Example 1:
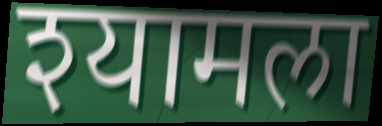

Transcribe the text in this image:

श्यामला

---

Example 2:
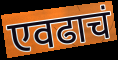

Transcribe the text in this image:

एवढाचं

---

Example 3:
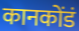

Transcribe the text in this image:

कानकोंडं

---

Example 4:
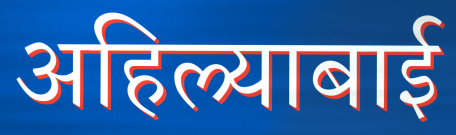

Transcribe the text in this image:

अहिल्याबाई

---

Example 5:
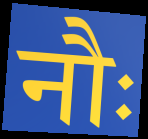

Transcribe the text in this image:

नौः